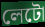
লেটো